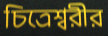
চিত্রেশ্বরীর